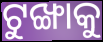
ଟୁଙ୍ଖାକୁ